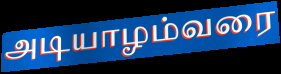
அடியாழம்வரை